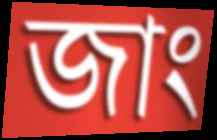
জাং